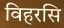
विहरसि